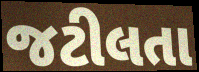
જટીલતા